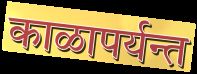
काळापर्यन्त